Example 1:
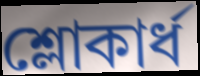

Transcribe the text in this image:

শ্লোকার্ধ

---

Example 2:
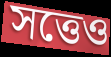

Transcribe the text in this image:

সত্তেও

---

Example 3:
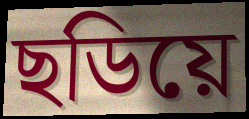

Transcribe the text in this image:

ছডিয়ে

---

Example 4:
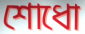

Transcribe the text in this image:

শোধো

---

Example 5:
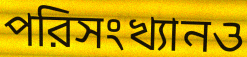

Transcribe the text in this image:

পরিসংখ্যানও